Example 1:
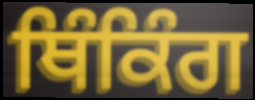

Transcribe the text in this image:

ਥਿੰਕਿੰਗ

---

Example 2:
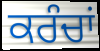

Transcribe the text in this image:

ਕਰੰਚਾਂ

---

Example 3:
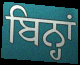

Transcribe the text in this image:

ਬਿਨ੍ਹਾਂ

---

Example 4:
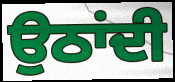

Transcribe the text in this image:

ਉਠਾਂਦੀ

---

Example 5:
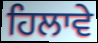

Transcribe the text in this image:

ਹਿਲਾਵੇ